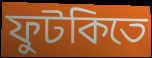
ফুটকিতে